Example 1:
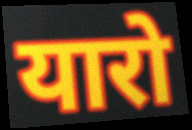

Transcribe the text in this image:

यारो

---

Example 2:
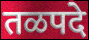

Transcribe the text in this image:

तळपदे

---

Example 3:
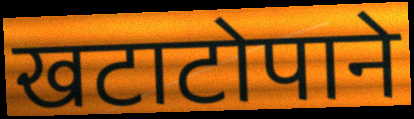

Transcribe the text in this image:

खटाटोपाने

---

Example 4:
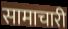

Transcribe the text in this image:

सामाचारी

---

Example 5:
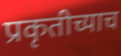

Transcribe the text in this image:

प्रकृतीच्याच